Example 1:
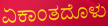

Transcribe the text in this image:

ಏಕಾಂತದೊಳು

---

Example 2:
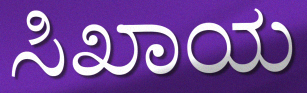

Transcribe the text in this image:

ಸಿಖಾಯ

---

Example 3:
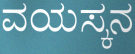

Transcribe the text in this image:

ವಯಸ್ಕನ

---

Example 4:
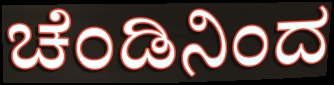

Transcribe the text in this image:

ಚೆಂಡಿನಿಂದ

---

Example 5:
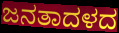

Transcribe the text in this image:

ಜನತಾದಳದ